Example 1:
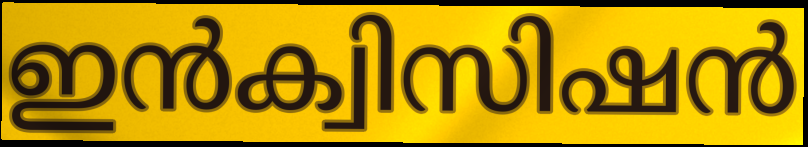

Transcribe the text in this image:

ഇൻക്വിസിഷൻ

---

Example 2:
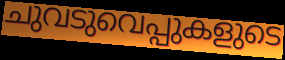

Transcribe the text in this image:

ചുവടുവെപ്പുകളുടെ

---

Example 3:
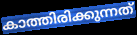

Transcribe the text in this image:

കാത്തിരിക്കുന്നത്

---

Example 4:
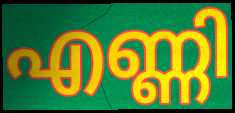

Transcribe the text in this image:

എണ്ണി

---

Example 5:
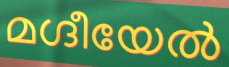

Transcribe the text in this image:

മഗ്ദീയേൽ